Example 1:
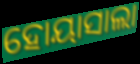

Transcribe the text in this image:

ହୋୟାସାଲା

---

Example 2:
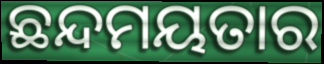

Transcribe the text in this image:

ଛନ୍ଦମୟତାର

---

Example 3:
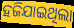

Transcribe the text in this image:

ହଜିଯାଇଥିଲା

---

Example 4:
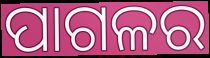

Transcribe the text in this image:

ପାଗଳର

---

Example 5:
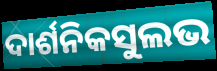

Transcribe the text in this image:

ଦାର୍ଶନିକସୁଲଭ